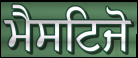
ਮੈਸਟਿਜੋ